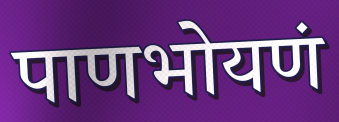
पाणभोयणं